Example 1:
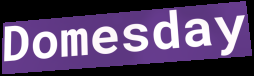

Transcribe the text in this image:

Domesday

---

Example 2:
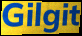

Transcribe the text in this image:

Gilgit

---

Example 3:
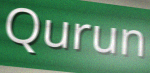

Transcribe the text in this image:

Qurun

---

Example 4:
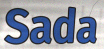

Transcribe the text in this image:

Sada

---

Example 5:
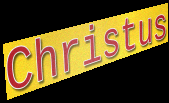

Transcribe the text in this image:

Christus